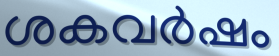
ശകവർഷം